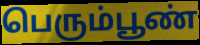
பெரும்பூண்